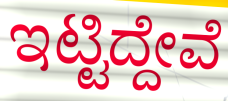
ಇಟ್ಟಿದ್ದೇವೆ